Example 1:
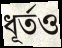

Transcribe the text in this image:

ধূর্তও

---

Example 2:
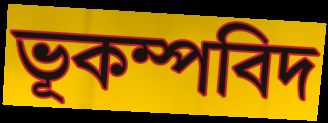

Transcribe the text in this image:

ভূকম্পবিদ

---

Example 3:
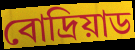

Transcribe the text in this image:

বোদ্রিয়াড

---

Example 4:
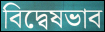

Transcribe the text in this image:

বিদ্বেষভাব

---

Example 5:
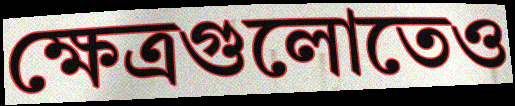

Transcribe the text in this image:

ক্ষেত্রগুলোতেও